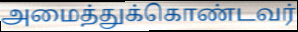
அமைத்துக்கொண்டவர்